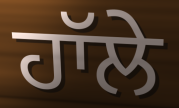
ਹਾੱਲੇ